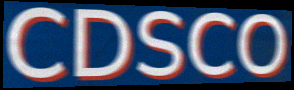
CDSCO